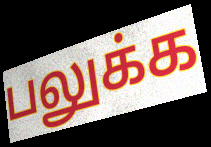
பலுக்க